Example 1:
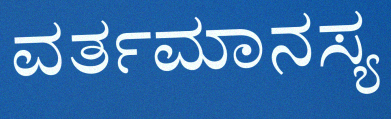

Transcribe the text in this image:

ವರ್ತಮಾನಸ್ಯ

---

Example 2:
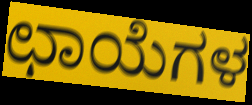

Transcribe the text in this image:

ಛಾಯೆಗಳ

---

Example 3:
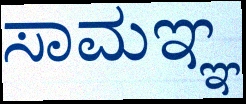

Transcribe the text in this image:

ಸಾಮಞ್ಞ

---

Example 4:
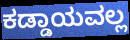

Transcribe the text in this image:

ಕಡ್ಡಾಯವಲ್ಲ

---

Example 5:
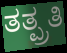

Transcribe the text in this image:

ತತ್ಪ್ರತಿ